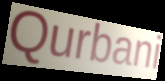
Qurbani